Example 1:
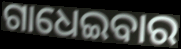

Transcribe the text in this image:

ଗାଧେଇବାର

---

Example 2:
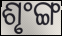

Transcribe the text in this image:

ଶୃଂଙ୍ଗ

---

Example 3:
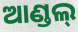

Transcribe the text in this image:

ଆଣ୍ଡଲ୍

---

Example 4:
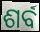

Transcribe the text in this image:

ଶର୍ବ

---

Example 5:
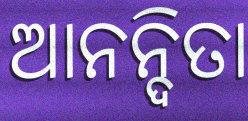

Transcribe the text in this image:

ଆନନ୍ଦିତା